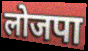
लोजपा